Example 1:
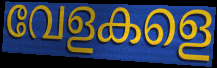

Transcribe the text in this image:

വേളകളെ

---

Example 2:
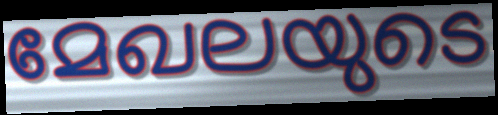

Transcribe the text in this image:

മേഖലയുടെ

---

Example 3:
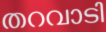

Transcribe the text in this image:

തറവാടി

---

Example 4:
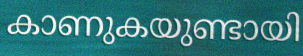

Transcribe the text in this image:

കാണുകയുണ്ടായി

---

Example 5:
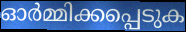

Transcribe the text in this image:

ഓർമ്മിക്കപ്പെടുക